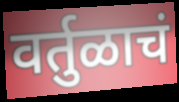
वर्तुळाचं